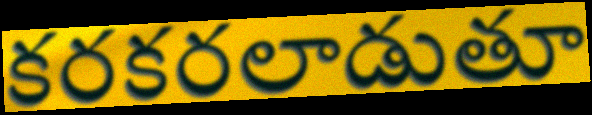
కరకరలాడుతూ